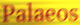
Palaeos